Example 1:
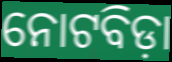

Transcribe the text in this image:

ନୋଟବିଡ଼ା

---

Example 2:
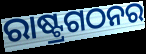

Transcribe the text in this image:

ରାଷ୍ଟ୍ରଗଠନର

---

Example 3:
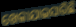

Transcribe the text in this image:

ଖେଳାଯାଇସାରିଛି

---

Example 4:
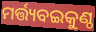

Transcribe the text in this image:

ମର୍ତ୍ତ୍ୟବଇକୁଣ୍ଠ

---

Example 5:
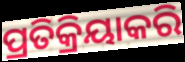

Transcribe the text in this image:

ପ୍ରତିକ୍ରିୟାକରି